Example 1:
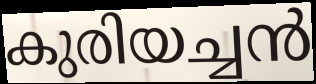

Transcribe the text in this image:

കുരിയച്ചൻ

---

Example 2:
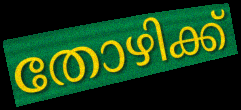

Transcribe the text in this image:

തോഴിക്ക്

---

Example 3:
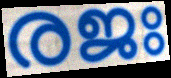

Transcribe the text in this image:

രജഃ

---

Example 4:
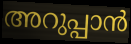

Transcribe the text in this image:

അറുപ്പാൻ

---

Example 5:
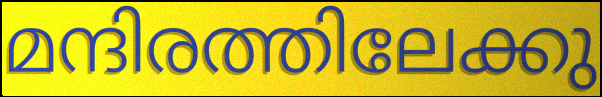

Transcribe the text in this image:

മന്ദിരത്തിലേക്കു